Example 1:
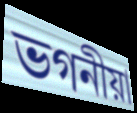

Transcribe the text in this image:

ভগনীয়া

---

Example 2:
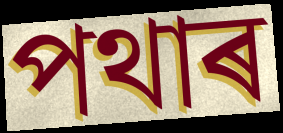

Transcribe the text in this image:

পথাৰ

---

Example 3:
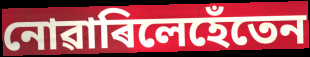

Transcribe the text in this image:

নোৱাৰিলেহেঁতেন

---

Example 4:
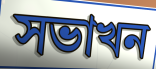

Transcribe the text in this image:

সভাখন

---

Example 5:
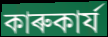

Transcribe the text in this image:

কাৰুকাৰ্য